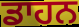
ਡਾਹਨ